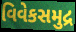
વિવેકસમુદ્ર